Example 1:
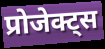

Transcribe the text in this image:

प्रोजेक्ट्स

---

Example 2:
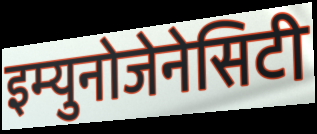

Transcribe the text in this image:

इम्युनोजेनेसिटी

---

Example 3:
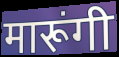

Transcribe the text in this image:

मारूंगी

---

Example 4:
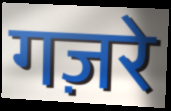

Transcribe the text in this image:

गज़रे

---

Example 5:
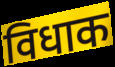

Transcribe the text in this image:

विधाक